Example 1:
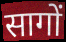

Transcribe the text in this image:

सागों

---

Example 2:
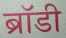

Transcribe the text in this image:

ब्रॉडी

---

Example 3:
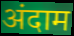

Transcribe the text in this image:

अंदाम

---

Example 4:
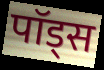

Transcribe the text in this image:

पॉड्स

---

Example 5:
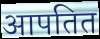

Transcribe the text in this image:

आपतित